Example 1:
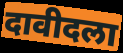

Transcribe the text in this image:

दावीदला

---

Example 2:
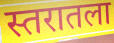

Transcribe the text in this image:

स्तरातला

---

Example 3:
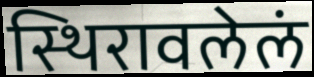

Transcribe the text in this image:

स्थिरावलेलं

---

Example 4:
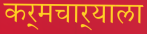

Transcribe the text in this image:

कर्मचार्याला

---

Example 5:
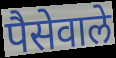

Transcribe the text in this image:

पैसेवाले